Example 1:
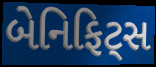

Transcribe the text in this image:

બેનિફિટ્સ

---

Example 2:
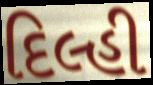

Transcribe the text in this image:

દિલ્હી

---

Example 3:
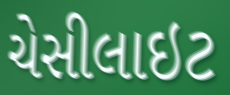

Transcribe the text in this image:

ચેસીલાઇટ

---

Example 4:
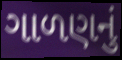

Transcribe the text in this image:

ગાળણનું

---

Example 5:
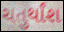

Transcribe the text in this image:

ચતુર્થાંશ